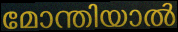
മോന്തിയാൽ